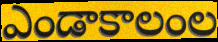
ఎండాకాలంల